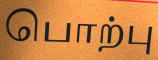
பொற்பு